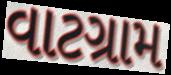
વાટગ્રામ